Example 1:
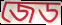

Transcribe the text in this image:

জেড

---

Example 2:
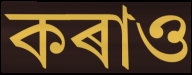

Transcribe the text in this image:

কৰাও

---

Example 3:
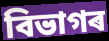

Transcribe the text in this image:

বিভাগৰ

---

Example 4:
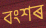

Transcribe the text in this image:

বংশৰ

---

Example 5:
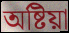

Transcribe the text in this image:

অষ্টিয়া